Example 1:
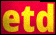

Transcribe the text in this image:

etd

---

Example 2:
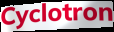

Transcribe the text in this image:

Cyclotron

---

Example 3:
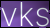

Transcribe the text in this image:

vks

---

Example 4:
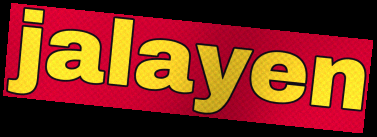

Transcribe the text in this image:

jalayen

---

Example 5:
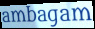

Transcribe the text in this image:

ambagam